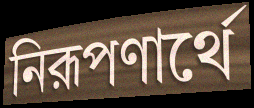
নিরূপণার্থে